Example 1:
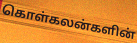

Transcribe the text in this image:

கொள்கலன்களின்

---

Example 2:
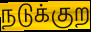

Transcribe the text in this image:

நடுக்குற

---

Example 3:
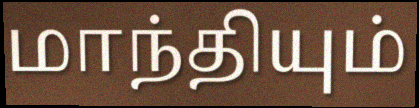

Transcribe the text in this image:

மாந்தியும்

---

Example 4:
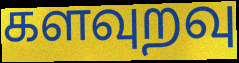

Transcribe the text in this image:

களவுறவு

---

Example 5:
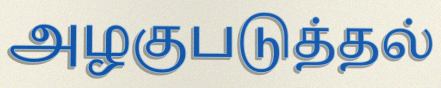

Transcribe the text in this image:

அழகுபடுத்தல்